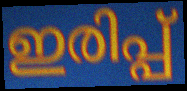
ഇരിപ്പ്